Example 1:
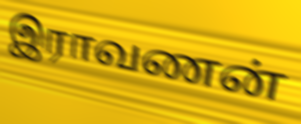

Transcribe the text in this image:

இராவணன்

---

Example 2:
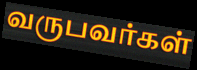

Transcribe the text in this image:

வருபவர்கள்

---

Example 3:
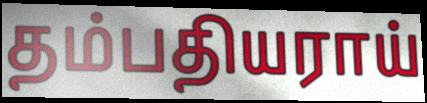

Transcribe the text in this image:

தம்பதியராய்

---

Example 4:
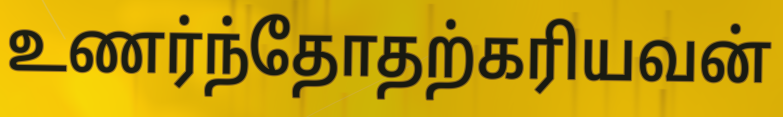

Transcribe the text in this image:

உணர்ந்தோதற்கரியவன்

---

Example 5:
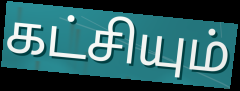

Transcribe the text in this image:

கட்சியும்